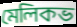
মেলিকভ